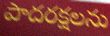
పాదరక్షలను